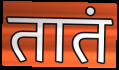
तातं